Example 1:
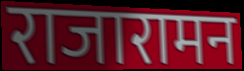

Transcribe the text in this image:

राजारामन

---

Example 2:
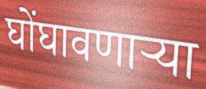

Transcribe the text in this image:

घोंघावणाऱ्या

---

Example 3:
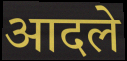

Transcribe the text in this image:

आदले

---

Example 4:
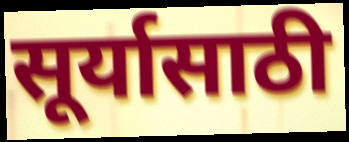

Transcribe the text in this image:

सूर्यासाठी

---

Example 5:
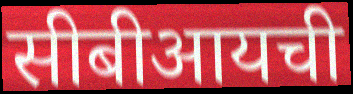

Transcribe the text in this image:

सीबीआयची